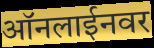
ऑनलाईनवर